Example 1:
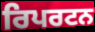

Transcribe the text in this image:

ਰਿਪਰਟਨ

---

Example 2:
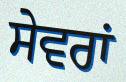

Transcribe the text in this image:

ਸੇਵਰਾਂ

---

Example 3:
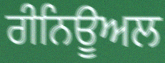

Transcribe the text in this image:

ਰੀਨਿਊਅਲ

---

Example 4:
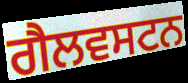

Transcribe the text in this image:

ਗੈਲਵਸਟਨ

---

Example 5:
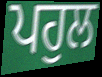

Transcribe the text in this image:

ਪਹੁਲ